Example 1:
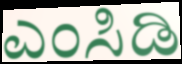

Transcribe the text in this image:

ಎಂಸಿಡಿ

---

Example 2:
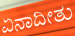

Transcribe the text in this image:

ಏನಾದೀತು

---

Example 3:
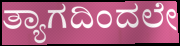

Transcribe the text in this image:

ತ್ಯಾಗದಿಂದಲೇ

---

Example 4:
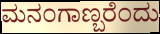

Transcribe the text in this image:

ಮನಂಗಾಣ್ಬರೆಂದು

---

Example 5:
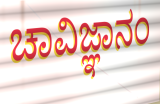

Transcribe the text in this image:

ಚಾವಿಜ್ಞಾನಂ